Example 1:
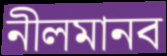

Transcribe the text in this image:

নীলমানব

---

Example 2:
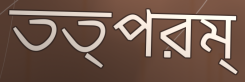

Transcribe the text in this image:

তত্পরম্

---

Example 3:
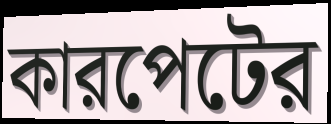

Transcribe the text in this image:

কারপেটের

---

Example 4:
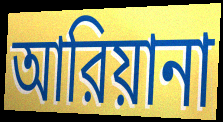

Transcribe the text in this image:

আরিয়ানা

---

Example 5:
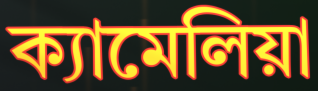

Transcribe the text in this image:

ক্যামেলিয়া